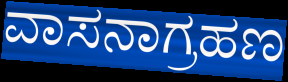
ವಾಸನಾಗ್ರಹಣ